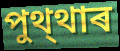
পুথ্থাৰ